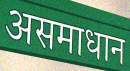
असमाधान